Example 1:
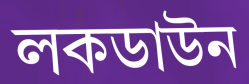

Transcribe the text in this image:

লকডাউন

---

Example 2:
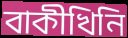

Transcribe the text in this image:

বাকীখিনি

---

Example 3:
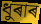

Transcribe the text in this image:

ধুৰাৰ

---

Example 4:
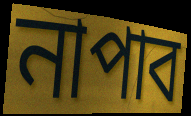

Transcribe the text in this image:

নাপাব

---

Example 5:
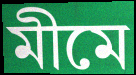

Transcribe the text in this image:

মীমে